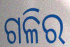
ଗଳିର